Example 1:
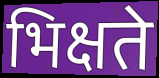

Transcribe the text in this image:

भिक्षते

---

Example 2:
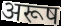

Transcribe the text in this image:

अरूष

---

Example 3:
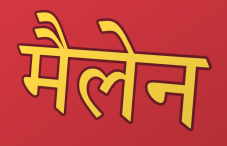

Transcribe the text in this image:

मैलेन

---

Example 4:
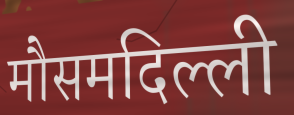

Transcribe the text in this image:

मौसमदिल्ली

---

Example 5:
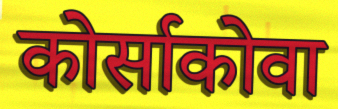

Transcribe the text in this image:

कोर्साकोवा